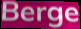
Berge